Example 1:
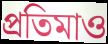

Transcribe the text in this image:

প্রতিমাও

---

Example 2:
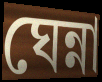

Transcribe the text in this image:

ঘেন্না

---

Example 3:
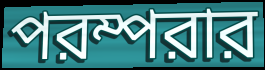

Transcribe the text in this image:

পরম্পরার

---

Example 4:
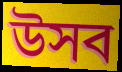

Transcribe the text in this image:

উসব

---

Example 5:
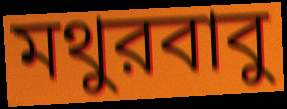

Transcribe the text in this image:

মথুরবাবু